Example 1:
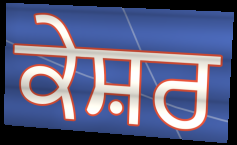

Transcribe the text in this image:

ਕੇਸ਼ਰ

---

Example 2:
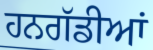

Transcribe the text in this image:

ਹਨਗੱਡੀਆਂ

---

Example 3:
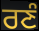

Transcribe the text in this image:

ਰਣੰ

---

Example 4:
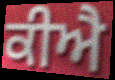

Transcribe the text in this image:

ਕੀਐ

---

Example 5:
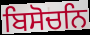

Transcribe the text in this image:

ਬਿਸੋਚਨਿ